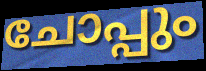
ചോപ്പും